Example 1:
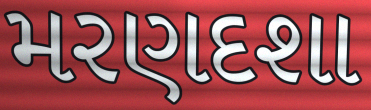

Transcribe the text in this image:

મરણદશા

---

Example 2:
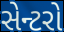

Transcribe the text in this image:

સેન્ટરો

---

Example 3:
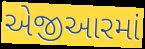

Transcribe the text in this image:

એજીઆરમાં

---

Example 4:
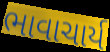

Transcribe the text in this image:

ભાવાચાર્ય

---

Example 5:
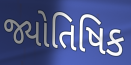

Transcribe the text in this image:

જ્યોતિષિક